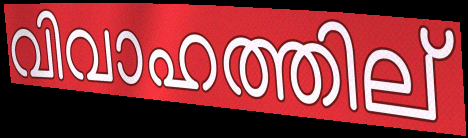
വിവാഹത്തില്